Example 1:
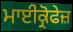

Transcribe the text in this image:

ਮਾਈਕ੍ਰੋਫੇਜ਼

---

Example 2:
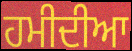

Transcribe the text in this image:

ਹਮੀਦੀਆ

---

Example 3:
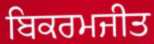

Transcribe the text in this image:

ਬਿਕਰਮਜੀਤ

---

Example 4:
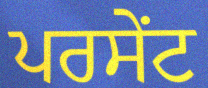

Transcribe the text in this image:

ਪਰਸੇੰਟ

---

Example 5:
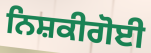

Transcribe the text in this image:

ਨਿਸ਼ਕੀਗੋਈ